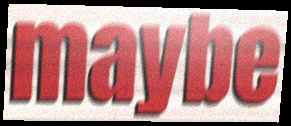
maybe